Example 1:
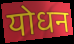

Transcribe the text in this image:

योधन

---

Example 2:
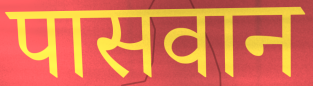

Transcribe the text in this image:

पासवान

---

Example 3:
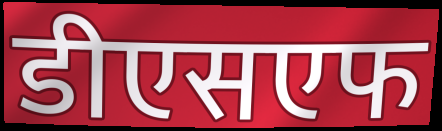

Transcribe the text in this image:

डीएसएफ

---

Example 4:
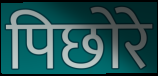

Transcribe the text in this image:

पिछोरे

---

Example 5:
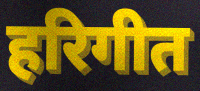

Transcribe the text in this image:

हरिगीत